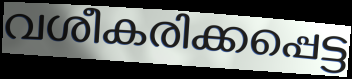
വശീകരിക്കപ്പെട്ട